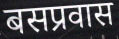
बसप्रवास